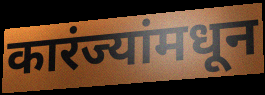
कारंज्यांमधून